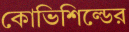
কোভিশিল্ডের